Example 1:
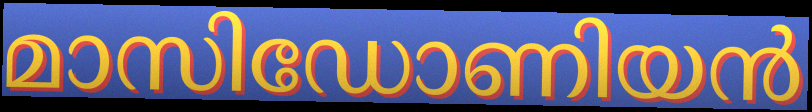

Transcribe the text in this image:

മാസിഡോണിയൻ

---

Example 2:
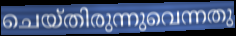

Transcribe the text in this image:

ചെയ്തിരുന്നുവെന്നതു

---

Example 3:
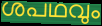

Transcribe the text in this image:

ശപഥവും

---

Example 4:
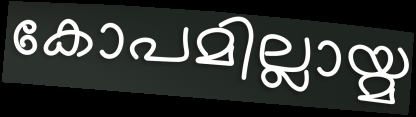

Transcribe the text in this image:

കോപമില്ലായ്മ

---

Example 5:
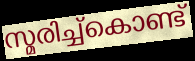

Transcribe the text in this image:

സ്മരിച്ച്കൊണ്ട്